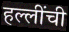
हल्लींची